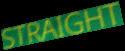
STRAIGHT